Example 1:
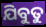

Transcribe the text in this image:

ଯିବୁତୁ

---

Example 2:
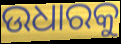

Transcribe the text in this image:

ଉଧାରକୁ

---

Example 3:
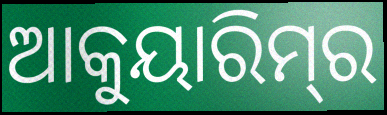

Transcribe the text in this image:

ଆକୁୟାରିମ୍‌ର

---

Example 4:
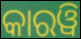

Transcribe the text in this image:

କାରୱି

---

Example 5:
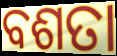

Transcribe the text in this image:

ବଶତା